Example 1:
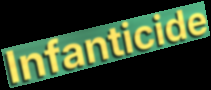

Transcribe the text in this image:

Infanticide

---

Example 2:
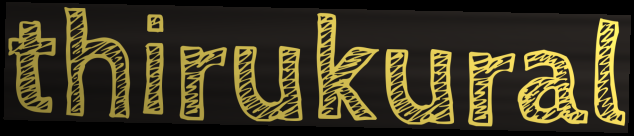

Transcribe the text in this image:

thirukural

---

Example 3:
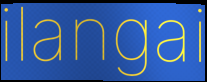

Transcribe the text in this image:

ilangai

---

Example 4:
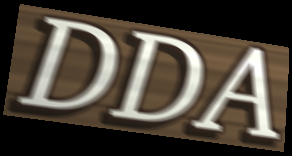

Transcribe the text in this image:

DDA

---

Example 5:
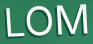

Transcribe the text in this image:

LOM